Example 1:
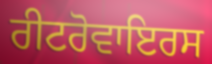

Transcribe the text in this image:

ਰੀਟਰੋਵਾਇਰਸ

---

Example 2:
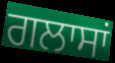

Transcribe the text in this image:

ਗਲਾਸਾਂ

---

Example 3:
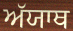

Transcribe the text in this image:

ਅੱਯਾਥ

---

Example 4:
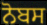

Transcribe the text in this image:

ਨੋਬਸ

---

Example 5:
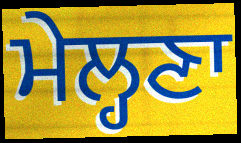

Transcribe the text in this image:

ਮੇਲ੍ਹਣਾ